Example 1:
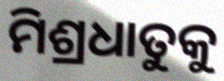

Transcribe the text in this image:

ମିଶ୍ରଧାତୁକୁ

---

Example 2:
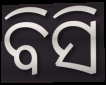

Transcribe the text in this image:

ବିସି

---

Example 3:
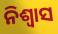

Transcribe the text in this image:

ନିଶ୍ଵାସ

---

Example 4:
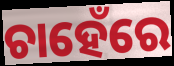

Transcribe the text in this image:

ଚାହେଁରେ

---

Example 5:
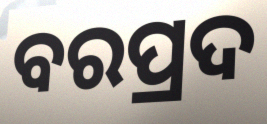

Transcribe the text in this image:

ବରପ୍ରଦ